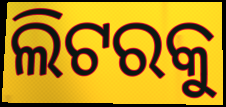
ଲିଟରକୁ